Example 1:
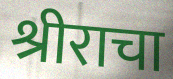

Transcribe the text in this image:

श्रीराचा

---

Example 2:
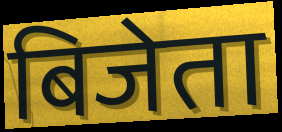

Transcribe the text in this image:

बिजेता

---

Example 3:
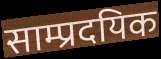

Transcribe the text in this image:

साम्प्रदयिक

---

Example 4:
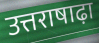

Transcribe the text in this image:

उत्तराषाढ़ा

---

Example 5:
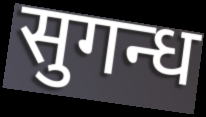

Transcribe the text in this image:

सुगन्ध